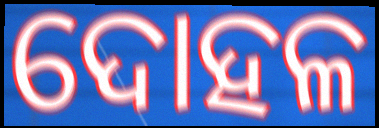
ଦୋହଳ